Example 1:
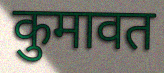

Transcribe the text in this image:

कुमावत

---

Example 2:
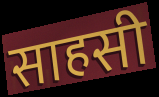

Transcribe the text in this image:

साहसी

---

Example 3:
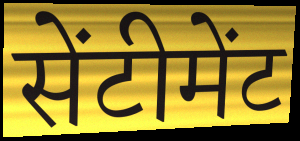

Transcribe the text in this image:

सेंटीमेंट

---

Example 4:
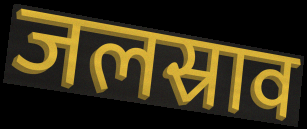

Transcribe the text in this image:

जलस्राव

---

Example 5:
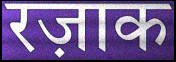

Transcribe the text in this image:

रज़ाक